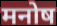
मनोष